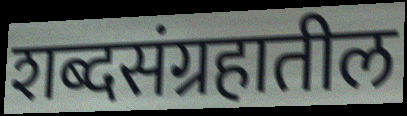
शब्दसंग्रहातील